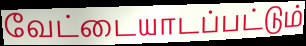
வேட்டையாடப்பட்டும்